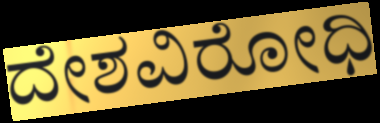
ದೇಶವಿರೋಧಿ